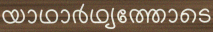
യാഥാർഥ്യത്തോടെ